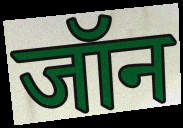
जॉन